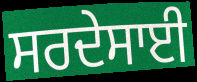
ਸਰਦੇਸਾਈ